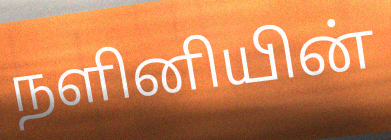
நளினியின்